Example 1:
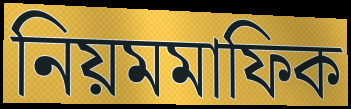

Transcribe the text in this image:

নিয়মমাফিক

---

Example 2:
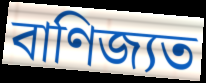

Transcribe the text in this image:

বাণিজ্যত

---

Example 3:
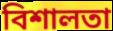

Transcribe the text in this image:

বিশালতা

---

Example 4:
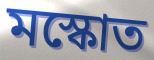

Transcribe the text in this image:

মস্কোত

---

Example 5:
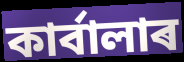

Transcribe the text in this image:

কাৰ্বালাৰ